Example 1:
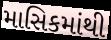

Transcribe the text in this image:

માસિકમાંથી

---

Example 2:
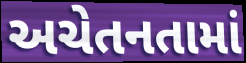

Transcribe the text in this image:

અચેતનતામાં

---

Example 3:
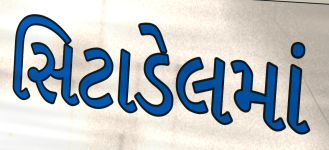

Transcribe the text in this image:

સિટાડેલમાં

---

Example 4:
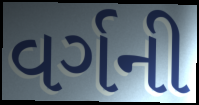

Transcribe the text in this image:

વર્ગની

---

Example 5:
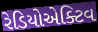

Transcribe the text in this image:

રેડિયોએક્ટિવ